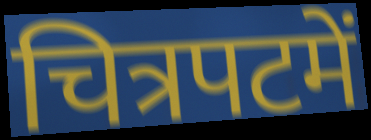
चित्रपटमें